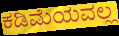
ಕಡಿಮೆಯವಲ್ಲ